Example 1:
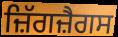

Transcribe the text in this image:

ਜ਼ਿੱਗਜ਼ੈਗਸ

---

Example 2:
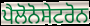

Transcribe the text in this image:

ਪੈਲੋਨੋਸੇਟਰੋਨ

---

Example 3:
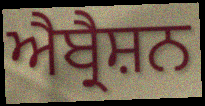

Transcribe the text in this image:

ਐਬ੍ਰੈਸ਼ਨ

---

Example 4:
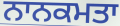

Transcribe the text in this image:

ਨਾਨਕਮਤਾ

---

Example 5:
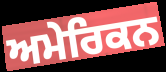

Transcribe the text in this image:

ਅਮੇਰਿਕਨ